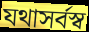
যথাসর্বস্ব